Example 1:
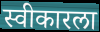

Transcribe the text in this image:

स्वीकारला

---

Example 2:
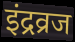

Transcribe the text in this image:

इंद्रव्रज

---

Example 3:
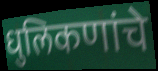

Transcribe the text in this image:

धुलिकणांचे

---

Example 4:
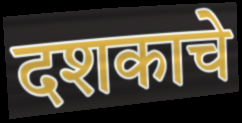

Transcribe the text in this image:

दशकाचे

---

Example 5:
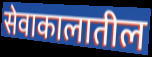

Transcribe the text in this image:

सेवाकालातील